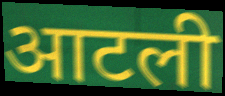
आटली